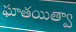
ఘాతయిత్వా